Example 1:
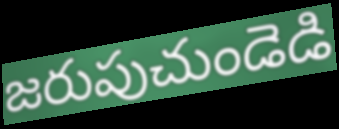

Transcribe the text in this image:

జరుపుచుండెడి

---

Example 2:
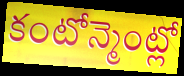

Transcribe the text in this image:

కంటోన్మెంట్లో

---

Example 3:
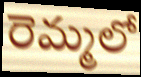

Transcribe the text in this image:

రెమ్మలో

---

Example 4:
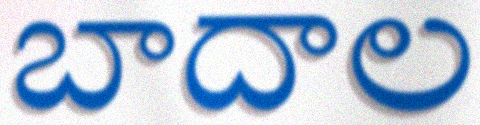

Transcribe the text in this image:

బాదాల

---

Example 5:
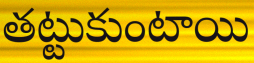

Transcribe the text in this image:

తట్టుకుంటాయి